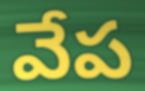
వేప